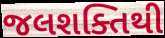
જલશક્તિથી